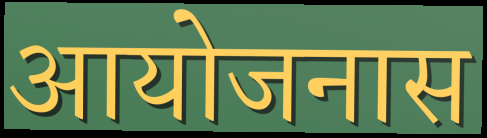
आयोजनास